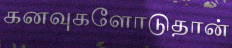
கனவுகளோடுதான்